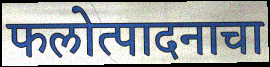
फलोत्पादनाचा